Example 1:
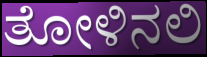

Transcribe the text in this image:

ತೋಳಿನಲಿ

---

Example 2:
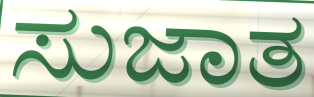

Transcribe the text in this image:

ಸುಜಾತ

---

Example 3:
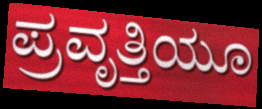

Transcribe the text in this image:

ಪ್ರವೃತ್ತಿಯೂ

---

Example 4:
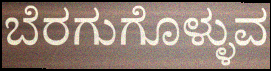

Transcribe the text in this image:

ಬೆರಗುಗೊಳ್ಳುವ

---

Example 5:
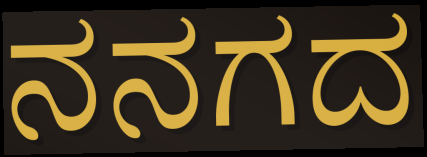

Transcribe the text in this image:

ನನಗದ